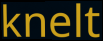
knelt